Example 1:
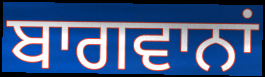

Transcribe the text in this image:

ਬਾਗਵਾਨਾਂ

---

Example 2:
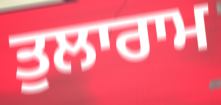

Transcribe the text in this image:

ਤੁਲਾਰਾਮ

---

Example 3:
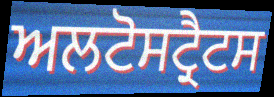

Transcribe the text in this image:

ਅਲਟੋਸਟ੍ਰੈਟਸ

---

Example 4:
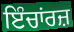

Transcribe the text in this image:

ਇੰਚਾਂਰਜ਼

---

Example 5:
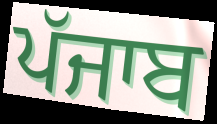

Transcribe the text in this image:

ਪੱਜਾਬ